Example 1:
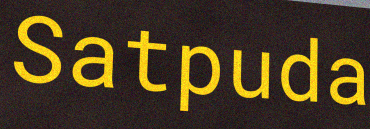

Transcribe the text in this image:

Satpuda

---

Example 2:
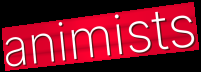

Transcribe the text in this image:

animists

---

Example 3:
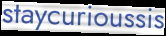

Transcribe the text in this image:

staycurioussis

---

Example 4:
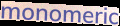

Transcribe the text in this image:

monomeric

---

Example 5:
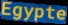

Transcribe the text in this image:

Egypte